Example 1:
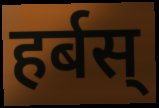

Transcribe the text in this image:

हर्बस्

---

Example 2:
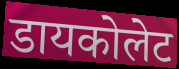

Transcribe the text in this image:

डायकोलेट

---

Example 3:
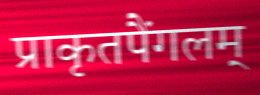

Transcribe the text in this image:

प्राकृतपैंगलम्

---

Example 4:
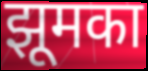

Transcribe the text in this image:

झूमका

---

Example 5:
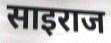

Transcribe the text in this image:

साइराज